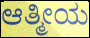
ಆತ್ಮೀಯ